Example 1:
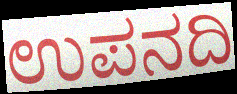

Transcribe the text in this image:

ಉಪನದಿ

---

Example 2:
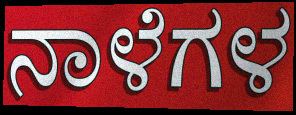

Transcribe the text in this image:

ನಾಳೆಗಳ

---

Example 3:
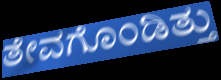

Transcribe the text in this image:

ತೇವಗೊಂಡಿತ್ತು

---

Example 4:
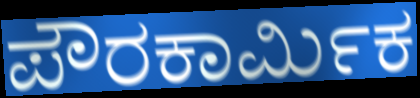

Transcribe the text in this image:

ಪೌರಕಾರ್ಮಿಕ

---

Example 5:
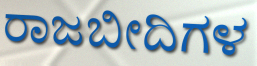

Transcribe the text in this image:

ರಾಜಬೀದಿಗಳ